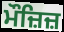
ਮੌਜ਼ਿਜ਼